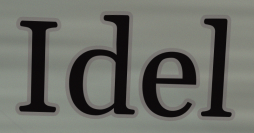
Idel